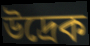
উদ্রেক